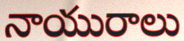
నాయురాలు